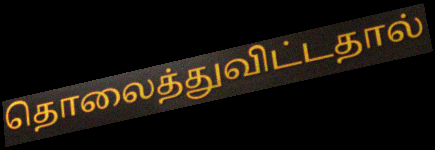
தொலைத்துவிட்டதால்